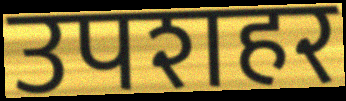
उपशहर